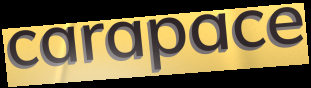
carapace